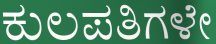
ಕುಲಪತಿಗಳೇ